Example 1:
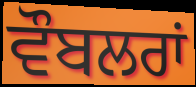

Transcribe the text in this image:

ਵੌਬਲਰਾਂ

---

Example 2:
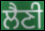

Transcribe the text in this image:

ਲੈਣੀ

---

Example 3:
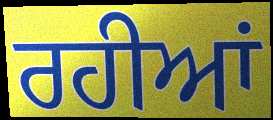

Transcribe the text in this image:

ਰਹੀਆਂ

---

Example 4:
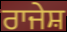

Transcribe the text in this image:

ਰਾਜੇਸ਼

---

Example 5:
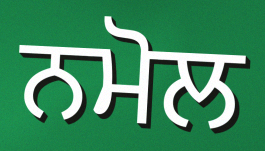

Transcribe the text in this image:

ਨਮੋਲ